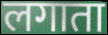
लगाता